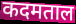
कदमताल